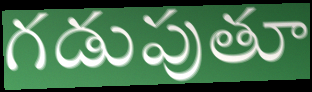
గడుపుతూ